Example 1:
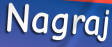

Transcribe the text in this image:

Nagraj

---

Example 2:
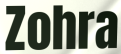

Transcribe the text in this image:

Zohra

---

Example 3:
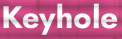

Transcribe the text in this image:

Keyhole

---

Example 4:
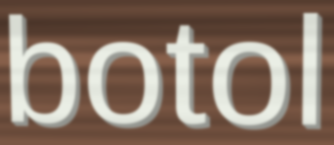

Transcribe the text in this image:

botol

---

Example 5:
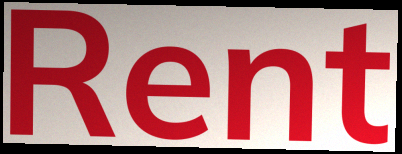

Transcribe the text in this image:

Rent